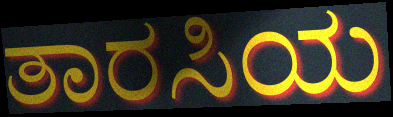
ತಾರಸಿಯ